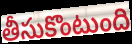
తీసుకొంటుంది